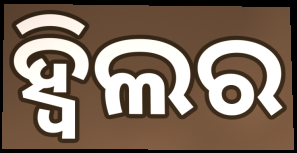
ହ୍ଵିଲର